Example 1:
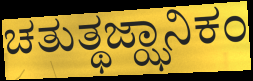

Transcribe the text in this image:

ಚತುತ್ಥಜ್ಝಾನಿಕಂ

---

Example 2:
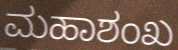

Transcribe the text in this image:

ಮಹಾಶಂಖ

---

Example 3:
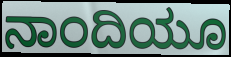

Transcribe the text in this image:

ನಾಂದಿಯೂ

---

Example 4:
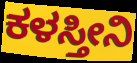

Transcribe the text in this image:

ಕಳಸ್ತೀನಿ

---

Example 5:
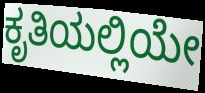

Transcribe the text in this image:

ಕೃತಿಯಲ್ಲಿಯೇ